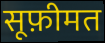
सूफ़ीमत